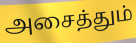
அசைத்தும்